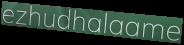
ezhudhalaame